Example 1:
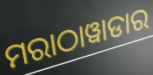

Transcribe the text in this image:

ମରାଠାୱାଡାର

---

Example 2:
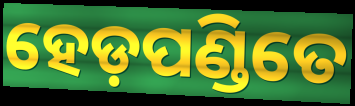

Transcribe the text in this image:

ହେଡ଼ପଣ୍ଡିତେ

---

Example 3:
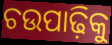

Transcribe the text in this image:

ଚଉପାଢ଼ିକୁ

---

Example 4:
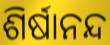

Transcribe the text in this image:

ଶିର୍ଷାନନ୍ଦ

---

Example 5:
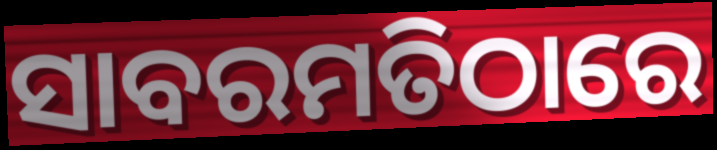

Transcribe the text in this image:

ସାବରମତିଠାରେ